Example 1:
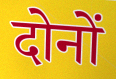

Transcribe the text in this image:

दोनों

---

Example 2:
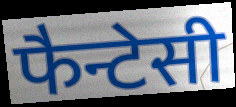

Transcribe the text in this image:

फैन्टेसी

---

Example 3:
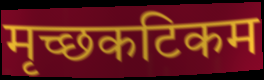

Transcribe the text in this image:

मृच्छकटिकम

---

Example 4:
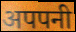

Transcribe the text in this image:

अपपनी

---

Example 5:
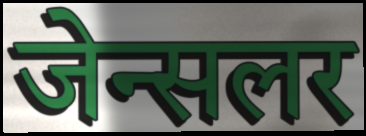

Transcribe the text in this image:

जेन्सलर